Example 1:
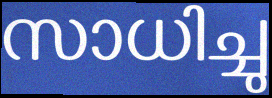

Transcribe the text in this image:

സാധിച്ചു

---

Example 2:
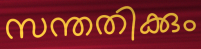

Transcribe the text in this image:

സന്തതിക്കും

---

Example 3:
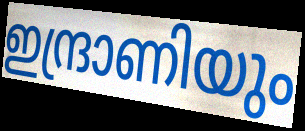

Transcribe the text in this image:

ഇന്ദ്രാണിയും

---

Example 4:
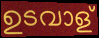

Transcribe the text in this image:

ഉടവാള്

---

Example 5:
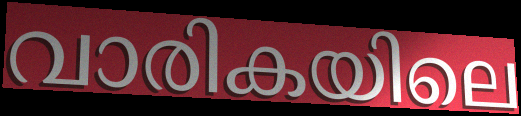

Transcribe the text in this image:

വാരികയിലെ